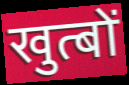
खुत्बों